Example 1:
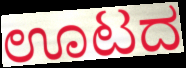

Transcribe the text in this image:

ಊಟದ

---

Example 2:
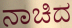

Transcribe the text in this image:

ನಾಚಿದ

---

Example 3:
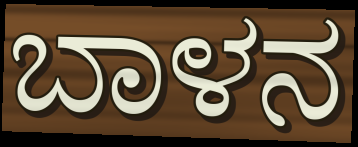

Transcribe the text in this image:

ಬಾಳನ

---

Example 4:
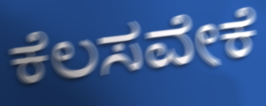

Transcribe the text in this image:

ಕೆಲಸವೇಕೆ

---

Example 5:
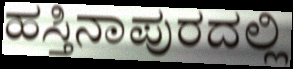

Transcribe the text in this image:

ಹಸ್ತಿನಾಪುರದಲ್ಲಿ